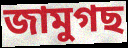
জামুগছ